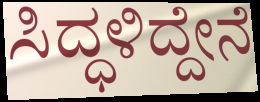
ಸಿದ್ಧಳಿದ್ದೇನೆ